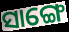
ସାଙ୍ଗେ